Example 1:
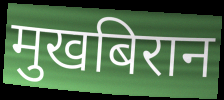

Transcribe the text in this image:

मुखबिरान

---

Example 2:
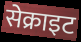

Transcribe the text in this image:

सेक्राइट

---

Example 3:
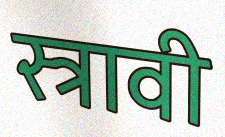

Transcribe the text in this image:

स्त्रावी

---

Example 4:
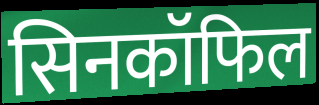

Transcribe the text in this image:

सिनकॉफिल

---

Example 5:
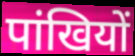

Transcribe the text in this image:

पांखियों